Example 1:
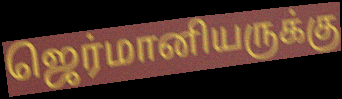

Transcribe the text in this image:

ஜெர்மானியருக்கு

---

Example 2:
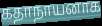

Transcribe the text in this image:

கதாநாயனாக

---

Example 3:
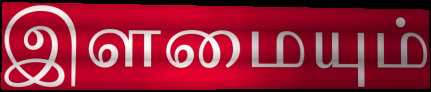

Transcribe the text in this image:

இளமையும்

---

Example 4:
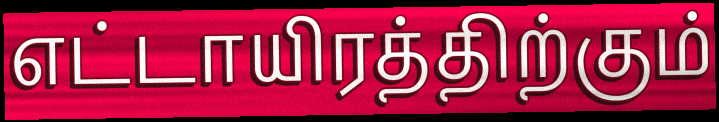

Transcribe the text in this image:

எட்டாயிரத்திற்கும்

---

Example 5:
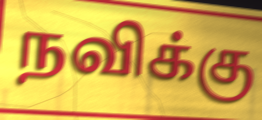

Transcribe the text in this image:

நவிக்கு